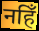
नहिँ